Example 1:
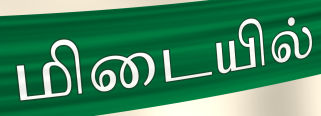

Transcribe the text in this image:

மிடையில்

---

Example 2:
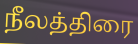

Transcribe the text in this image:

நீலத்திரை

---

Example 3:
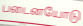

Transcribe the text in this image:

படைனயோடு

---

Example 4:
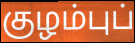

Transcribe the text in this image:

குழம்புப்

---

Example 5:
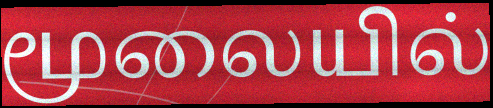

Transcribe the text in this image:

மூலையில்